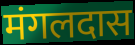
मंगलदास